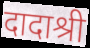
दादाश्री